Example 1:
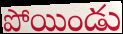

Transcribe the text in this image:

పోయిండు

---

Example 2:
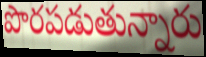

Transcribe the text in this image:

పొరపడుతున్నారు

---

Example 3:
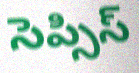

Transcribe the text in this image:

సెప్సిస్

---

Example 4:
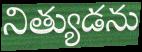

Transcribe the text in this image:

నిత్యుడను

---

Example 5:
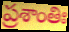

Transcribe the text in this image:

ప్రశాంతిః